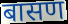
बासण